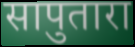
सापुतारा